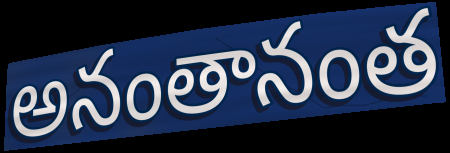
అనంతానంత